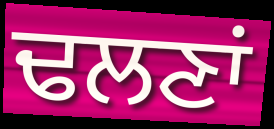
ਢਲਣਾਂ